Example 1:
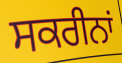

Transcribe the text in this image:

ਸਕਰੀਨਾਂ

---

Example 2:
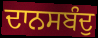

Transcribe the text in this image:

ਦਾਨਸਬੰਦੁ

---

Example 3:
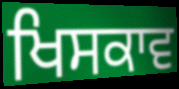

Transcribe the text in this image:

ਖਿਸਕਾਵ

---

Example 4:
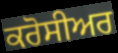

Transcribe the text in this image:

ਕਰੋਸੀਅਰ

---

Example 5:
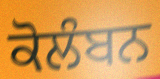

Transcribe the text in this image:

ਕੋਲੰਬਨ